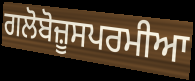
ਗਲੋਬੋਜ਼ੂਸਪਰਮੀਆ